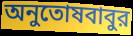
অনুতোষবাবুর